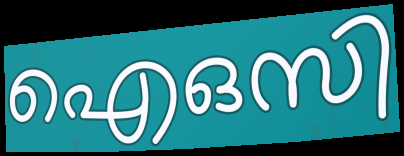
ഐഒസി